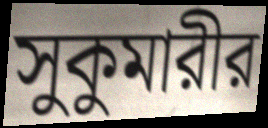
সুকুমারীর